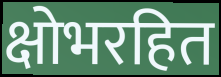
क्षोभरहित